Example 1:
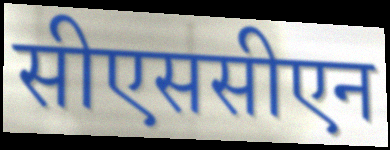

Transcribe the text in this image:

सीएससीएन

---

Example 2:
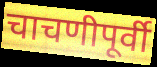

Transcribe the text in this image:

चाचणीपूर्वी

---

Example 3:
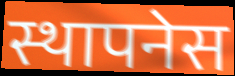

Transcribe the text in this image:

स्थापनेस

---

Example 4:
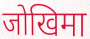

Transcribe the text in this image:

जोखिमा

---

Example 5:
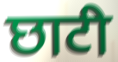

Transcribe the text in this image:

छाटी